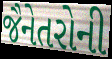
જૈનેતરોની